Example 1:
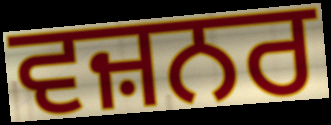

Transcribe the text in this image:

ਵਜ਼ਨਰ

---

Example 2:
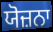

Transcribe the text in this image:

ਯੋਜ਼ਨਾ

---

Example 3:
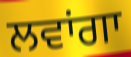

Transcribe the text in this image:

ਲਵਾਂਗਾ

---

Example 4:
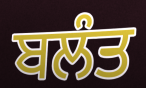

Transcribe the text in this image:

ਬਲੰਤ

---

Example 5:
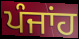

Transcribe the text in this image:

ਪੰਜਾਂਹ